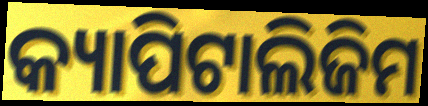
କ୍ୟାପିଟାଲିଜିମ